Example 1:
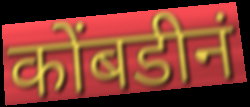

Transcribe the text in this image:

कोंबडीनं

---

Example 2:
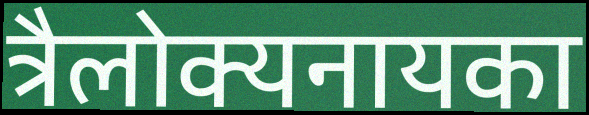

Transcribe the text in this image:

त्रैलोक्यनायका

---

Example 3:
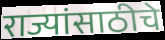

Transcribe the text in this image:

राज्यांसाठीचे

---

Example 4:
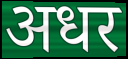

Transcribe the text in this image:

अधर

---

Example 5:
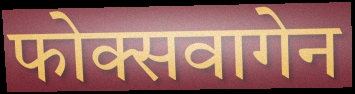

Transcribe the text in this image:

फोक्सवागेन